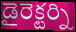
డైరెక్టర్ని